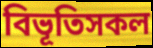
বিভূতিসকল